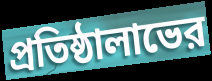
প্রতিষ্ঠালাভের